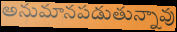
అనుమానపడుతున్నావు